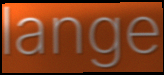
lange